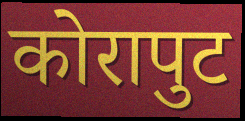
कोरापुट